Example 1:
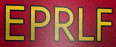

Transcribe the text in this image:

EPRLF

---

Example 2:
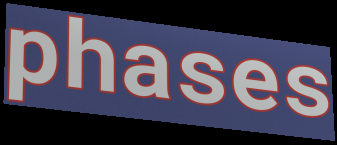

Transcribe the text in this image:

phases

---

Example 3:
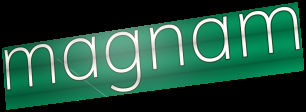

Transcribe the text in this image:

magnam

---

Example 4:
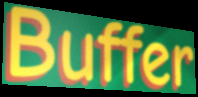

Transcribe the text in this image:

Buffer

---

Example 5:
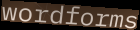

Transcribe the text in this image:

wordforms